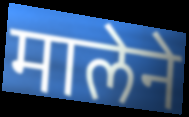
मालेने